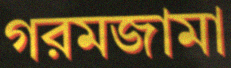
গরমজামা